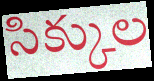
సిక్కుల